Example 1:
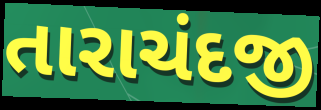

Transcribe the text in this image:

તારાચંદજી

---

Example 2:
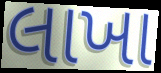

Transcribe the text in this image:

લાખા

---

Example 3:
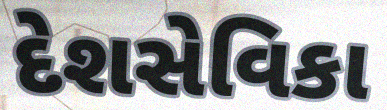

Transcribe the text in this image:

દેશસેવિકા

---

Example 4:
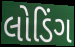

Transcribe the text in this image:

લોડિંગ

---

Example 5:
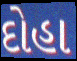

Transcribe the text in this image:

દોહા